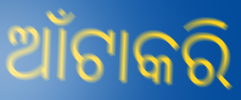
ଆଁଟାକରି